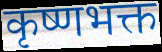
कृष्णभक्त